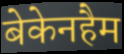
बेकेनहैम